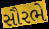
સૌરભે